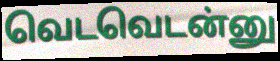
வெடவெடன்னு